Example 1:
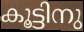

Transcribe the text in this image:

കൂട്ടിനു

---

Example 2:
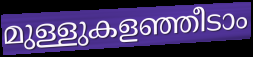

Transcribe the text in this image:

മുള്ളുകളഞ്ഞീടാം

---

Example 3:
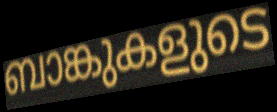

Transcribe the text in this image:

ബാങ്കുകളുടെ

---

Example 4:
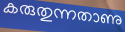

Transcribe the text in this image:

കരുതുന്നതാണു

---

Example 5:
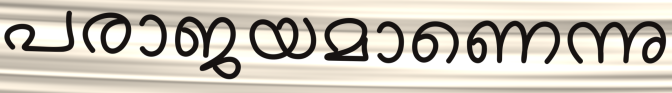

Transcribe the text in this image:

പരാജയമാണെന്നു